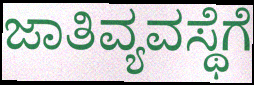
ಜಾತಿವ್ಯವಸ್ಥೆಗೆ